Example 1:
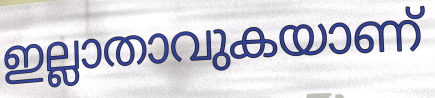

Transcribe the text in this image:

ഇല്ലാതാവുകയാണ്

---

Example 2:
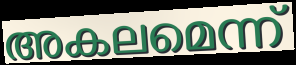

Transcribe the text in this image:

അകലമെന്ന്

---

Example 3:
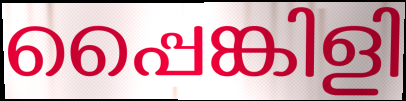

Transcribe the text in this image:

പ്പൈങ്കിളി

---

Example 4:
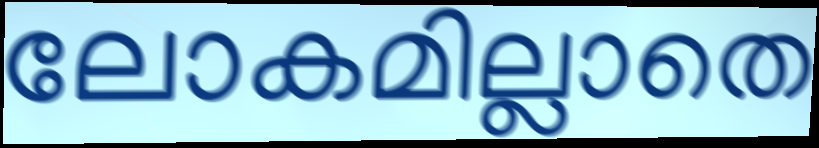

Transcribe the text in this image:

ലോകമില്ലാതെ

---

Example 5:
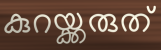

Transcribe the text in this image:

കുറയ്ക്കരുത്